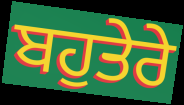
ਬਹੁਤੇਰੇ